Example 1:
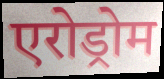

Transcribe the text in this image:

एरोड्रोम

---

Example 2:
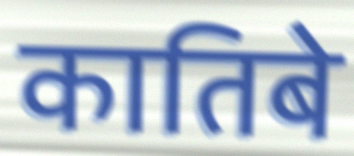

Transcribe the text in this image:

कातिबे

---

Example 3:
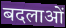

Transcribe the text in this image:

बदलाओं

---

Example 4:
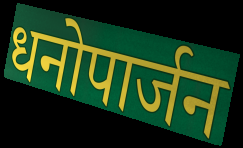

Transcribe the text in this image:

धनोपार्जन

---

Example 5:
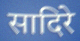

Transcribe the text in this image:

सादिरे